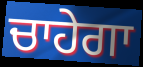
ਚਾਹੇਗਾ